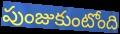
పుంజుకుంటోంది